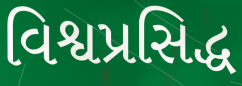
વિશ્વપ્રસિદ્ધ